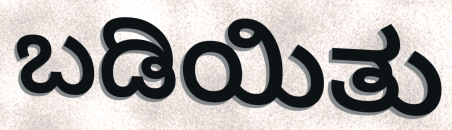
ಬಡಿಯಿತು